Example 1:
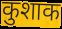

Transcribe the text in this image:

कुशाक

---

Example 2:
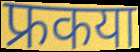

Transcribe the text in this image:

फ्रकया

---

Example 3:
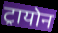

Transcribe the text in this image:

ट्रायोन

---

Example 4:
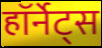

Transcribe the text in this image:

हॉर्नेट्स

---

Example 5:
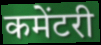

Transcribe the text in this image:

कमेंटरी